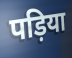
पड़िया